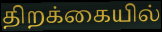
திறக்கையில்